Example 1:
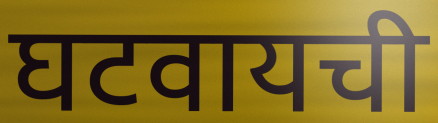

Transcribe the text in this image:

घटवायची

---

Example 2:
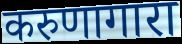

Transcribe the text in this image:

करुणागारा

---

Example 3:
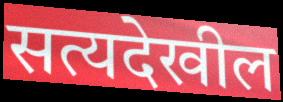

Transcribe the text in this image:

सत्यदेखील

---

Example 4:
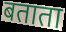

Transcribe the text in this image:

बताता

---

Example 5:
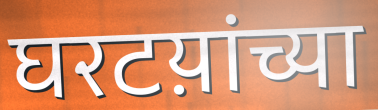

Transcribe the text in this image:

घरटय़ांच्या